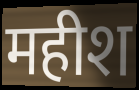
महीश